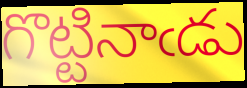
గొట్టినాఁడు